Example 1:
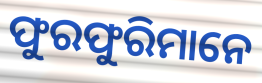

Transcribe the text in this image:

ଫୁରଫୁରିମାନେ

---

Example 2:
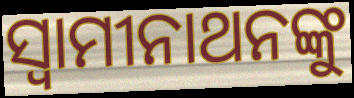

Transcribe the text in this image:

ସ୍ୱାମୀନାଥନଙ୍କୁ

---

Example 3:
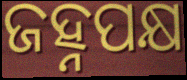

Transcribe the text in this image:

ଜହ୍ନପକ୍ଷ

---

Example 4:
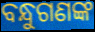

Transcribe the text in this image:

ବନ୍ଧୁଗଣଙ୍କ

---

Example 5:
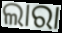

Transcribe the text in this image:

ଲାରା